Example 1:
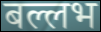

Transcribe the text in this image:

बल्लभ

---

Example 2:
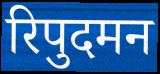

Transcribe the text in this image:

रिपुदमन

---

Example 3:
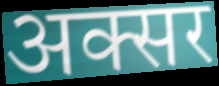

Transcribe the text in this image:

अक्सर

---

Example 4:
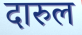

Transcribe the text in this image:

दारुल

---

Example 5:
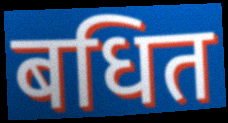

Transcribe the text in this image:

बधित